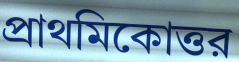
প্রাথমিকোত্তর